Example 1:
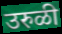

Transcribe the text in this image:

उरुळी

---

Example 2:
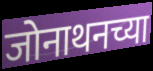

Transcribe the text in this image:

जोनाथनच्या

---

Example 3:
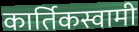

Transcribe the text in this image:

कार्तिकस्वामी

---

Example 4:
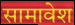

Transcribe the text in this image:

सामावेश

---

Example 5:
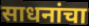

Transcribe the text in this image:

साधनांचा